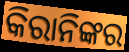
କିରାନିଙ୍କର